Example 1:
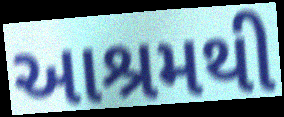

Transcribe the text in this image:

આશ્રમથી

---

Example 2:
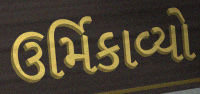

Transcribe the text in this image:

ઉર્મિકાવ્યો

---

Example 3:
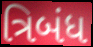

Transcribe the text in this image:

ત્રિબંધ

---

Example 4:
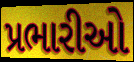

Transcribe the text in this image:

પ્રભારીઓ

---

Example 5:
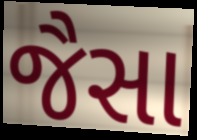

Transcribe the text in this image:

જૈસા